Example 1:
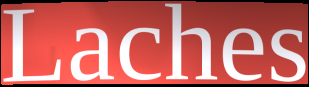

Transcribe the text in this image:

Laches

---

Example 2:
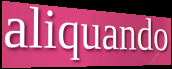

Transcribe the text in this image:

aliquando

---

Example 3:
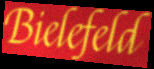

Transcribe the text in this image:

Bielefeld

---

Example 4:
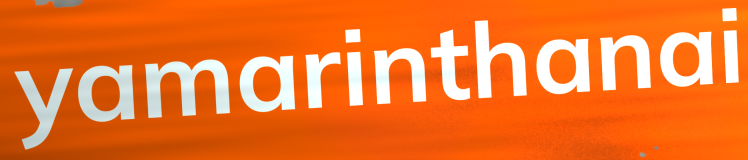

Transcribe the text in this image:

yamarinthanai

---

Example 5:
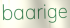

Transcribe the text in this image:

baarige